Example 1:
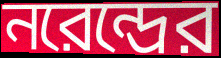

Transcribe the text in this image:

নরেন্দ্রের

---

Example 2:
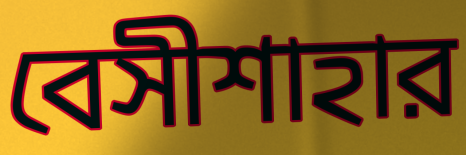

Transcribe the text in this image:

বেসীশাহার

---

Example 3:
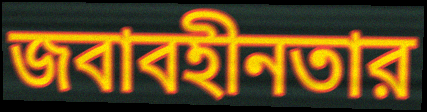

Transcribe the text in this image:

জবাবহীনতার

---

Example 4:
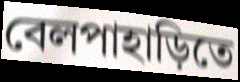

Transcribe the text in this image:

বেলপাহাড়িতে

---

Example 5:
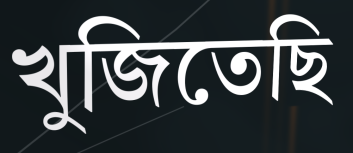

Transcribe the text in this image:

খুজিতেছি